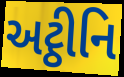
અટ્ઠીનિ